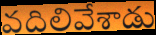
వదిలివేశాడు